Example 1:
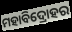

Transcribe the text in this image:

ମହାବିଦ୍ରୋହର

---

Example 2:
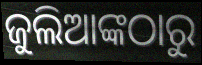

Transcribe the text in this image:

ଜୁଲିଆଙ୍କଠାରୁ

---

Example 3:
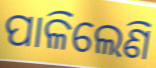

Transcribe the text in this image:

ପାଳିଲେଣି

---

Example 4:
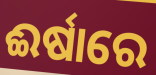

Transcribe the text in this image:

ଈର୍ଷାରେ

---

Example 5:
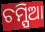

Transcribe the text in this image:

ଚମ୍ପିଆ